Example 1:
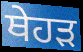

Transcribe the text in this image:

ਥੇਹੜ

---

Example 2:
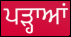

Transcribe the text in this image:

ਪੜ੍ਹਾਆਂ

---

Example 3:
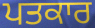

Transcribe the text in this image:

ਪਤਕਾਰ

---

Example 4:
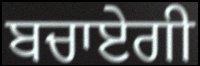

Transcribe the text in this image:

ਬਚਾਏਗੀ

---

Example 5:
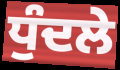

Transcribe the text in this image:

ਧੁੰਦਲੇ